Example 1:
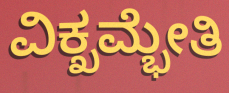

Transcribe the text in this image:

ವಿಕ್ಖಮ್ಭೇತಿ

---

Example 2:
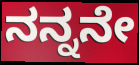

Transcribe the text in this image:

ನನ್ನನೇ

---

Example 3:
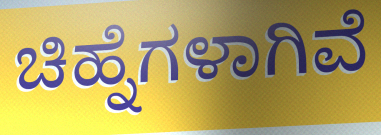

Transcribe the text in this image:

ಚಿಹ್ನೆಗಳಾಗಿವೆ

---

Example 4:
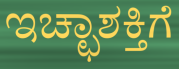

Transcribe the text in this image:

ಇಚ್ಛಾಶಕ್ತಿಗೆ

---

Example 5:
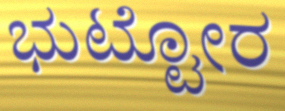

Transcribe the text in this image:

ಭುಟ್ಟೋರ